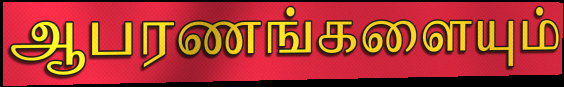
ஆபரணங்களையும்